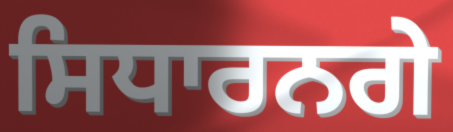
ਸਿਧਾਰਨਗੇ